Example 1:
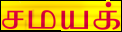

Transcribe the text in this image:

சமயக்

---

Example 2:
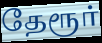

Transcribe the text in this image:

தேரூர்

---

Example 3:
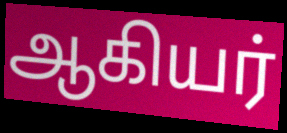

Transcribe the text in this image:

ஆகியர்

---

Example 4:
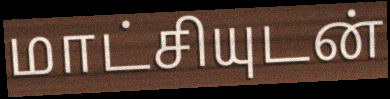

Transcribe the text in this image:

மாட்சியுடன்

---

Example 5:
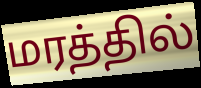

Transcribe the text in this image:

மரத்தில்